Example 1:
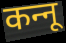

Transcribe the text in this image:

कन्नू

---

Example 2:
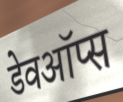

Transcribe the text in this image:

डेवऑप्स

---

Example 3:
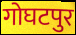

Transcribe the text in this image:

गोघटपुर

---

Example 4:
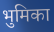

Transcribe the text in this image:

भुमिका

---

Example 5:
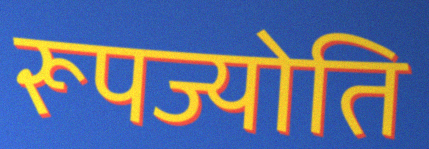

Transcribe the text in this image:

रूपज्योति